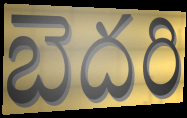
బెదరి